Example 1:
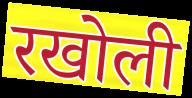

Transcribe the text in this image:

रखोली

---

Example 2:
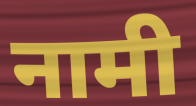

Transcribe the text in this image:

नामी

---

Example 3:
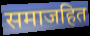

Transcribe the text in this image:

समाजहित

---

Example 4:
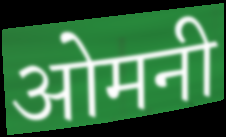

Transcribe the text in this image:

ओमनी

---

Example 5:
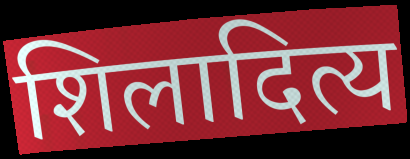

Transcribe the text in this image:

शिलादित्य